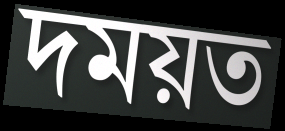
দময়ত